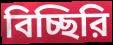
বিচ্ছিরি